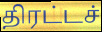
திரட்டச்